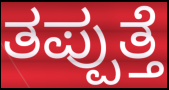
ತಪ್ಪುತ್ತೆ